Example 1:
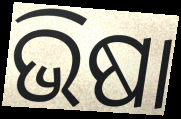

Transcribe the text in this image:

ଭିଷା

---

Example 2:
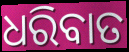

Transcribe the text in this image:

ଧରିବାତ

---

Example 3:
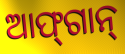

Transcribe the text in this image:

ଆଫ୍‌ଗାନ୍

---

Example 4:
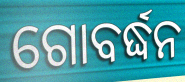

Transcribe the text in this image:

ଗୋବର୍ଦ୍ଧନ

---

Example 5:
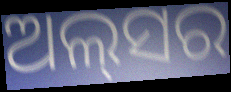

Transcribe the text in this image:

ଅଲ୍‌ସର